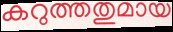
കറുത്തതുമായ